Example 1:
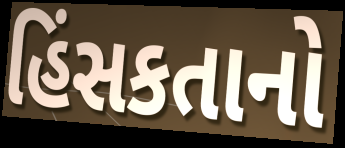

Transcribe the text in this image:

હિંસકતાનો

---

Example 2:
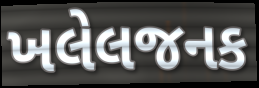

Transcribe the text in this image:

ખલેલજનક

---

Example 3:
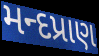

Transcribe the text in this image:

મન્દપ્રાણ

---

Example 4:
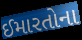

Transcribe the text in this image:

ઈમારતોના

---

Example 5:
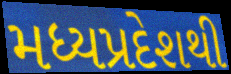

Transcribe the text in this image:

મધ્યપ્રદેશથી